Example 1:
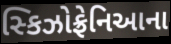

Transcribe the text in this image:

સ્કિઝોફ્રેનિઆના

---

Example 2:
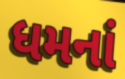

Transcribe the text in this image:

ધમનાં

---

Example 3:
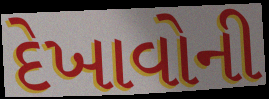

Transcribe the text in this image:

દેખાવોની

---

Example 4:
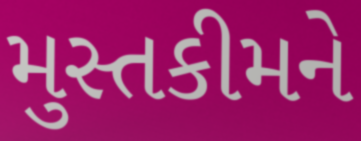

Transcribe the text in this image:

મુસ્તકીમને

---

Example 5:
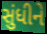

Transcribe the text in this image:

સુંધીને